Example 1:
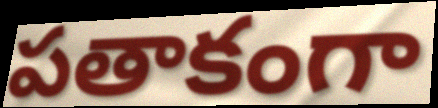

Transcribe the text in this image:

పతాకంగా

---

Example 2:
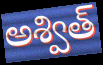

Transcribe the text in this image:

అశ్విత్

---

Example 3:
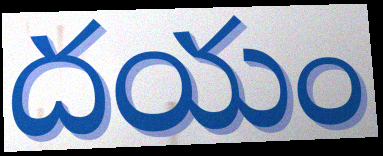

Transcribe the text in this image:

దయం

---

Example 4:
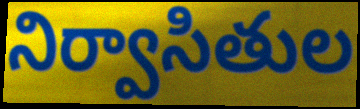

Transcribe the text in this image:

నిర్వాసితుల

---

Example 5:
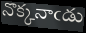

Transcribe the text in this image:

నొక్కనాఁడు